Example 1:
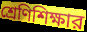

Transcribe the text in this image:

শ্রেণিশিক্ষার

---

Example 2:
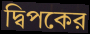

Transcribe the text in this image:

দ্বিপকের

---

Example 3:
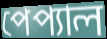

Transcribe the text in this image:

পেপ্যাল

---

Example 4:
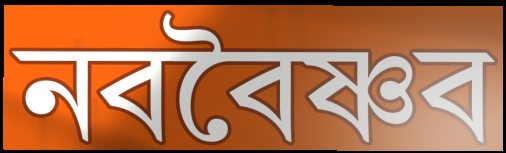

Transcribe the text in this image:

নববৈষ্ণব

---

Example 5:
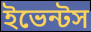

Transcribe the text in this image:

ইভেন্টস